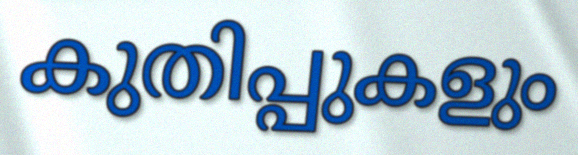
കുതിപ്പുകളും